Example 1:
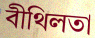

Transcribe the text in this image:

বীথিলতা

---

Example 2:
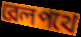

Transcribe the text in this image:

রেলপথে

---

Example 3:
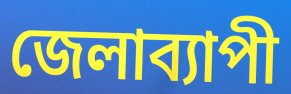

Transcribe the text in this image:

জেলাব্যাপী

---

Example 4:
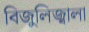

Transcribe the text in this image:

বিজুলিজ্বালা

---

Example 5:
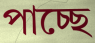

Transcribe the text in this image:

পাচ্ছে